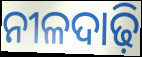
ନୀଳଦାଢ଼ି